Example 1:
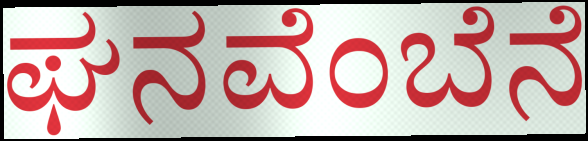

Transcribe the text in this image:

ಘನವೆಂಬೆನೆ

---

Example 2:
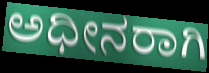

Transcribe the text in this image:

ಅಧೀನರಾಗಿ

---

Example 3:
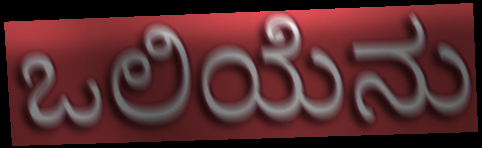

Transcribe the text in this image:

ಒಲಿಯೆನು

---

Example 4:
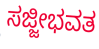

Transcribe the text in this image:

ಸಜ್ಜೀಭವತ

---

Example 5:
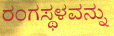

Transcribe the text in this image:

ರಂಗಸ್ಥಳವನ್ನು